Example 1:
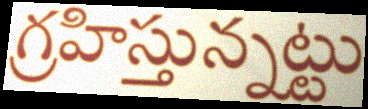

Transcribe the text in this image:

గ్రహిస్తున్నట్టు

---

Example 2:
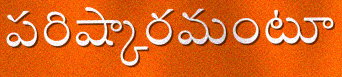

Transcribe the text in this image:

పరిష్కారమంటూ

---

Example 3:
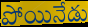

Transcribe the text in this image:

పోయినేడు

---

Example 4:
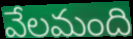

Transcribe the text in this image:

వేలమంది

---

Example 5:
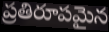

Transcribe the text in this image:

ప్రతిరూపమైన